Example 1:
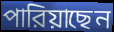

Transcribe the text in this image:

পারিয়াছেন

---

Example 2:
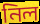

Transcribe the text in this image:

নিল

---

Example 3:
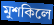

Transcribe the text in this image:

মুশকিলে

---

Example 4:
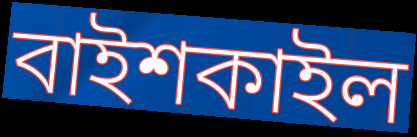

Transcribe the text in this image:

বাইশকাইল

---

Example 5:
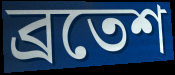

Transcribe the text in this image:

ব্রতেশ